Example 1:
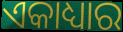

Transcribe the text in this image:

ଏକାଧ୍ୟାର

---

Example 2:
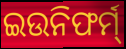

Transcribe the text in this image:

ଇଉନିଫର୍ମ୍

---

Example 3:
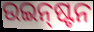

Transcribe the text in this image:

ଉଇନ୍‌ଷ୍ଟନ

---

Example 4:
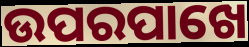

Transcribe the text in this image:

ଉପରପାଖେ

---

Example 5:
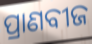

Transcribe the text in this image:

ପ୍ରାଣବୀଜ